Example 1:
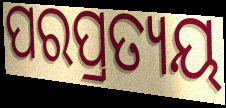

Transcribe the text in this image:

ପରପ୍ରତ୍ୟୟ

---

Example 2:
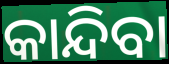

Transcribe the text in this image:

କାନ୍ଦିବା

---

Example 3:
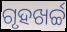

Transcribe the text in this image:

ଗୃହଖର୍ଚ୍ଚ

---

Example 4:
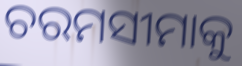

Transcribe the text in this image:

ଚରମସୀମାକୁ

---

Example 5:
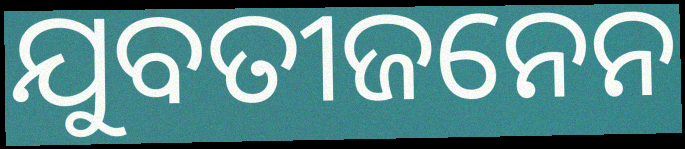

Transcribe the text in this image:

ଯୁବତୀଜନେନ